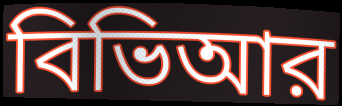
বিভিআর